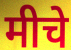
मीचे